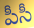
పీసీ